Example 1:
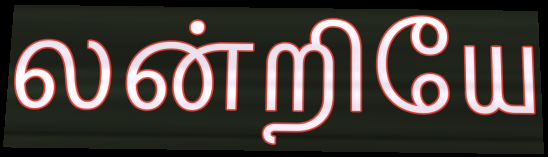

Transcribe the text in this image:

லன்றியே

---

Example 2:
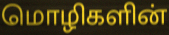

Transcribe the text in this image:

மொழிகளின்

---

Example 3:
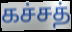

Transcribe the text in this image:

கச்சத்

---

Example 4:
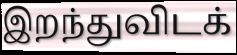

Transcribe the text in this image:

இறந்துவிடக்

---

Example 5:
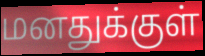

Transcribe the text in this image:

மனதுக்குள்